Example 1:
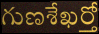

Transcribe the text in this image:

గుణశేఖర్తో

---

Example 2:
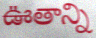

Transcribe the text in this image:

ఊతాన్ని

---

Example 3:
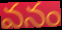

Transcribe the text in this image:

వనం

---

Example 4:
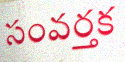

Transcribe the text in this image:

సంవర్తక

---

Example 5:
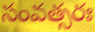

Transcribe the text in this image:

సంవత్సరః